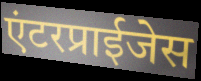
एंटरप्राईजेस